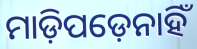
ମାଡ଼ିପଡ଼େନାହିଁ